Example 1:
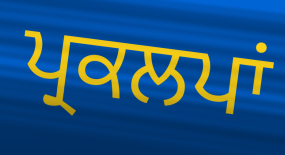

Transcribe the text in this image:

ਪ੍ਰਕਲਪਾਂ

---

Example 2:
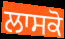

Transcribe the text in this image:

ਲਾਸਕੋ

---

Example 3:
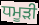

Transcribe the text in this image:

ਧਮੂੜੀ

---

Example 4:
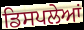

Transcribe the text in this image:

ਡਿਸਪਲੇਆਂ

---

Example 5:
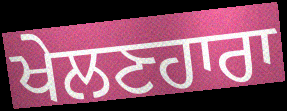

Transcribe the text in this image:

ਖੇਲਣਹਾਰਾ